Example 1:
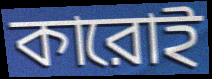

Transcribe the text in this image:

কারোই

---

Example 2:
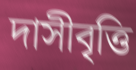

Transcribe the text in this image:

দাসীবৃত্তি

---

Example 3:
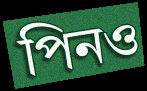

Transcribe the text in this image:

পিনও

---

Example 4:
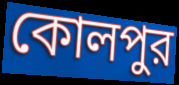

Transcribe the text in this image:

কোলপুর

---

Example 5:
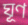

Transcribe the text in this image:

ঘূণ